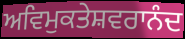
ਅਵਿਮੁਕਤੇਸ਼ਵਰਾਨੰਦ